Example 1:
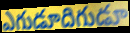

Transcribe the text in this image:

ఎగుడూదిగుడూ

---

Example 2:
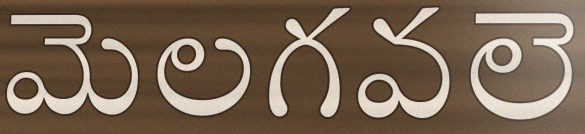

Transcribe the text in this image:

మెలగవలె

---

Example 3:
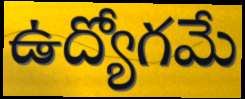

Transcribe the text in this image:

ఉద్యోగమే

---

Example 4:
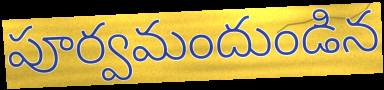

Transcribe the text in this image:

పూర్వమందుండిన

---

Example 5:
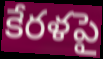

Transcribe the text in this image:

కేరళపై